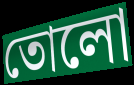
তোলো